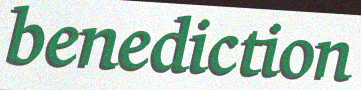
benediction